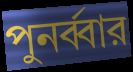
পুনর্ব্বার